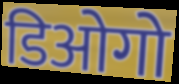
डिओगो